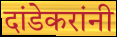
दांडेकरांनी